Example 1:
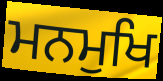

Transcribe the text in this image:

ਮਨਮੁਖਿ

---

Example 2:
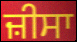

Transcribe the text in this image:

ਜ਼ੀਸਾ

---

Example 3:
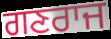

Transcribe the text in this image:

ਗਣਰਾਜ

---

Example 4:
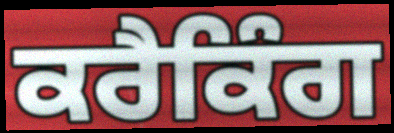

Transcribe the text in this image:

ਕਰੈਕਿੰਗ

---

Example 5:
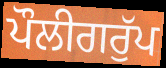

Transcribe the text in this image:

ਪੌਲੀਗਰੁੱਪ